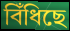
বিঁধিছে